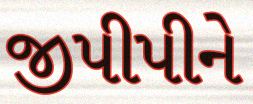
જીપીપીને